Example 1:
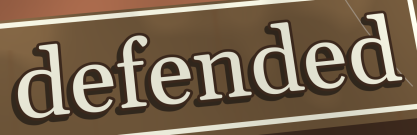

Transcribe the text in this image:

defended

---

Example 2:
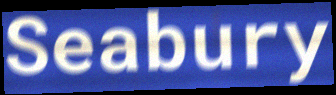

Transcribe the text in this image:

Seabury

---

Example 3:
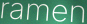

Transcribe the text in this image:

ramen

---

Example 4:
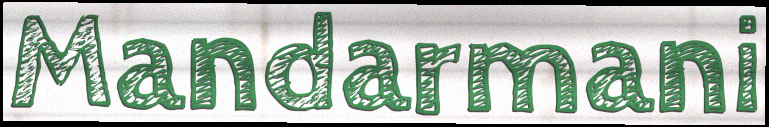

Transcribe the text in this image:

Mandarmani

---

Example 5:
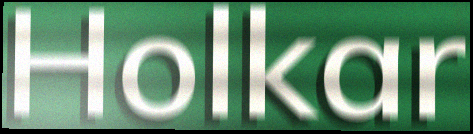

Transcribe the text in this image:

Holkar